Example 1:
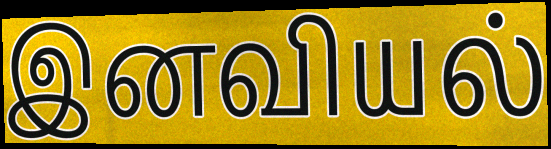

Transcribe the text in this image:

இனவியல்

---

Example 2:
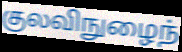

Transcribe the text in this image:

குலவிநுழைந்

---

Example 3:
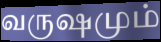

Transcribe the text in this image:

வருஷமும்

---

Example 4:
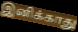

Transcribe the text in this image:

இனிக்காது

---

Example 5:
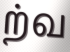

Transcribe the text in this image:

ற்வ